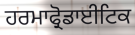
ਹਰਮਾਫ੍ਰੋਡਾਈਟਿਕ